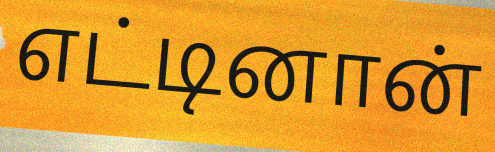
எட்டினான்